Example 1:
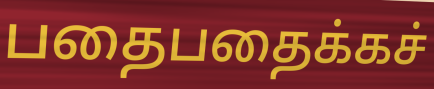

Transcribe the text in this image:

பதைபதைக்கச்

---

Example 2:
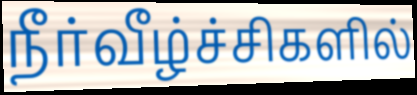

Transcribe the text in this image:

நீர்வீழ்ச்சிகளில்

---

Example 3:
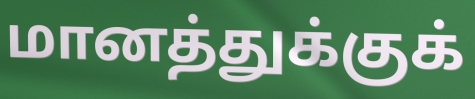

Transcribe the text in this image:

மானத்துக்குக்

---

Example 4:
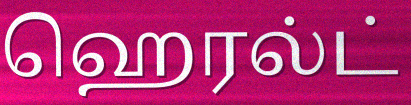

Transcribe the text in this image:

ஹெரல்ட்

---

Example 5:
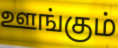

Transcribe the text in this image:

ஊங்கும்